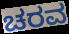
ಚರವ